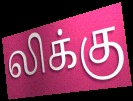
லிக்கு